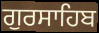
ਗੁਰਸਾਹਿਬ